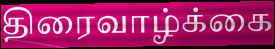
திரைவாழ்க்கை